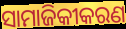
ସାମାଜିକୀକରଣ